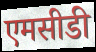
एमसीडी